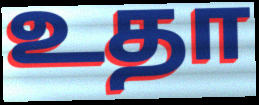
உதா